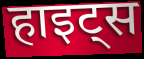
हाइट्स